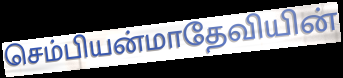
செம்பியன்மாதேவியின்